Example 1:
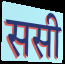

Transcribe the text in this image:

ससी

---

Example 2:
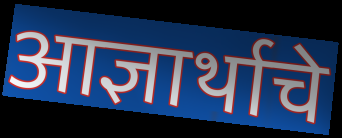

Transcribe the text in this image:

आज्ञार्थाचे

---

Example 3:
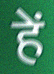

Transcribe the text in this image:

हें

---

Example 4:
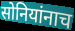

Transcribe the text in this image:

सोनियांनाच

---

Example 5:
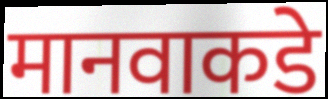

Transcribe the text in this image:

मानवाकडे